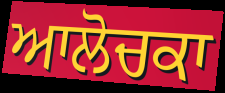
ਆਲੋਚਕਾ